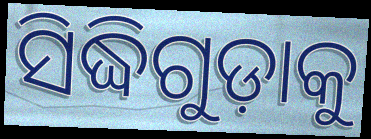
ସିଦ୍ଧିଗୁଡ଼ାକୁ